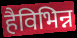
हैविभिन्न